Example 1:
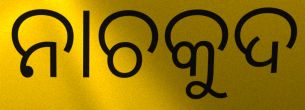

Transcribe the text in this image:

ନାଚକୁଦ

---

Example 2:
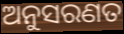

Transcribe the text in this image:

ଅନୁସରଣତ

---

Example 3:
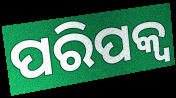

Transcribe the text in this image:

ପରିପକ୍ଵ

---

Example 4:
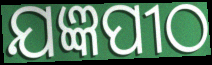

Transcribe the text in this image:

ଯଜ୍ଞପୀଠ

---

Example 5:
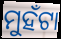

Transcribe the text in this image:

ମୁହଁଟା